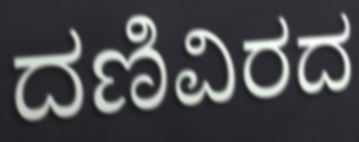
ದಣಿವಿರದ